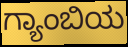
ಗ್ಯಾಂಬಿಯ